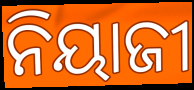
ନିୟାଜୀ